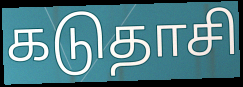
கடுதாசி